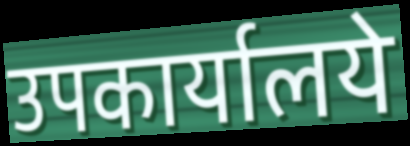
उपकार्यालये